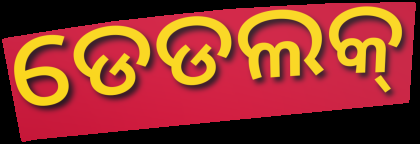
ଡେଡଲକ୍